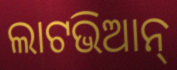
ଲାଟଭିଆନ୍